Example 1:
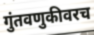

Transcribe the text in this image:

गुंतवणुकीवरच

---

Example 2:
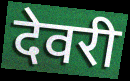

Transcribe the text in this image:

देवरी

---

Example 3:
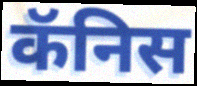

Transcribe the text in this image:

कॅनिस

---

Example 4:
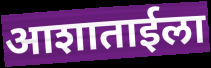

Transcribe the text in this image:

आशाताईला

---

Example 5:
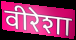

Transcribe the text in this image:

वीरेशा